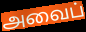
அவைப்